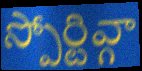
స్పోర్టివ్గా